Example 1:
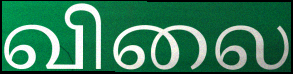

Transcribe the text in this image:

விலை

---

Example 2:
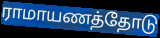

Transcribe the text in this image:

ராமாயணத்தோடு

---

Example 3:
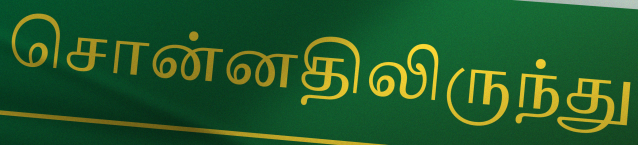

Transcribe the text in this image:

சொன்னதிலிருந்து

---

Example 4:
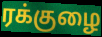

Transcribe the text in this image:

ரக்குழை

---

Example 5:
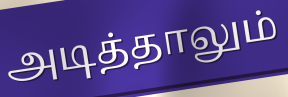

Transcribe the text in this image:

அடித்தாலும்